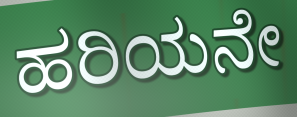
ಹರಿಯನೇ